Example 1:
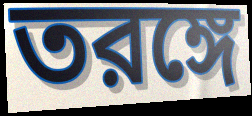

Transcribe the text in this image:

তরঙ্গে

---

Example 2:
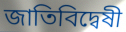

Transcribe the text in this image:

জাতিবিদ্বেষী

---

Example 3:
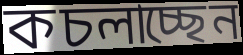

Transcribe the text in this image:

কচলাচ্ছেন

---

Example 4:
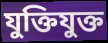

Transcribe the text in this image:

যুক্তিযুক্ত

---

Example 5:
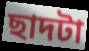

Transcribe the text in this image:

ছাদটা